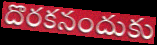
దొరకనందుకు